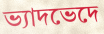
ভ্যাদভেদে